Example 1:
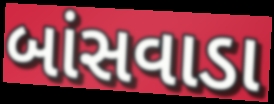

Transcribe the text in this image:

બાંસવાડા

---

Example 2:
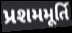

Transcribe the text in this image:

પ્રશમમૂર્તિ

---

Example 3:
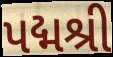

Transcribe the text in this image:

પદ્મશ્રી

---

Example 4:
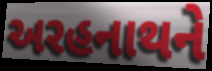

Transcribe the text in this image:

અરહનાથને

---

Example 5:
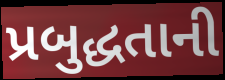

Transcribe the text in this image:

પ્રબુદ્ધતાની